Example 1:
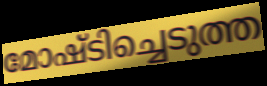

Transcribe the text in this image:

മോഷ്ടിച്ചെടുത്ത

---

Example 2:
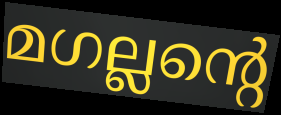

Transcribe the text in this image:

മഗല്ലന്റെ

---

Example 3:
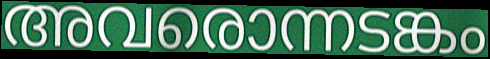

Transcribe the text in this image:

അവരൊന്നടങ്കം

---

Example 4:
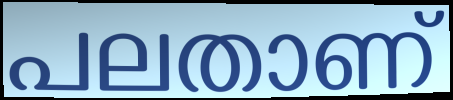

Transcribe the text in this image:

പലതാണ്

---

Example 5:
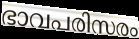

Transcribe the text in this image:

ഭാവപരിസരം